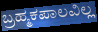
ಬ್ರಹ್ಮಕಪಾಲವಿಲ್ಲ